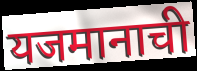
यजमानाची